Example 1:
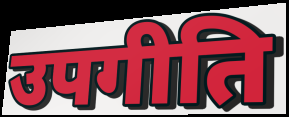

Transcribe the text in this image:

उपगीति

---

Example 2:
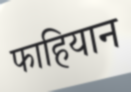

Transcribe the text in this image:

फाहियान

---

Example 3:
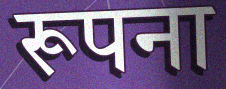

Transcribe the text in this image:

रूपना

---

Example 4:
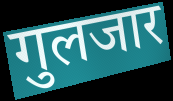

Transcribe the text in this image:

गुलजार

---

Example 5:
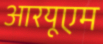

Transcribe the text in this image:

आरयूएम